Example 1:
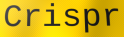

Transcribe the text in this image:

Crispr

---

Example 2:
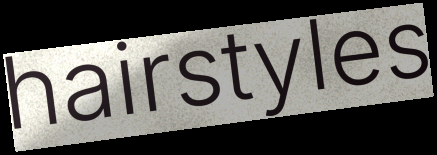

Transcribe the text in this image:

hairstyles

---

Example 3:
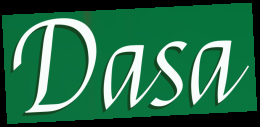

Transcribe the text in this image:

Dasa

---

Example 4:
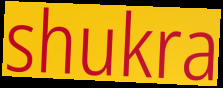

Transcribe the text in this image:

shukra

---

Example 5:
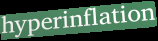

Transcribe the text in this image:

hyperinflation